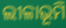
ଲୀଳାଭୂମି